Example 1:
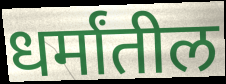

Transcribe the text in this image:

धर्मांतील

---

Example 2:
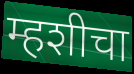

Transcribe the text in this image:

म्हशीचा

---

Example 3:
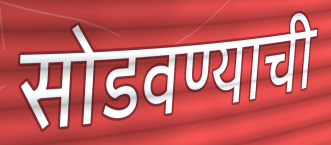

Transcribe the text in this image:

सोडवण्याची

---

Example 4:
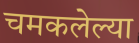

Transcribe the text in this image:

चमकलेल्या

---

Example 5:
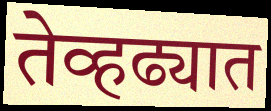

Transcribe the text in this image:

तेव्हढ्यात